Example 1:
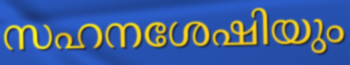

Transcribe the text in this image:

സഹനശേഷിയും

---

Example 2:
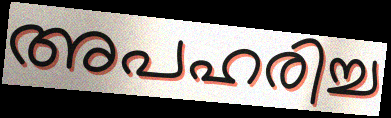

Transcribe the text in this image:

അപഹരിച്ച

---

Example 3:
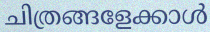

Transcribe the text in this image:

ചിത്രങ്ങളേക്കാൾ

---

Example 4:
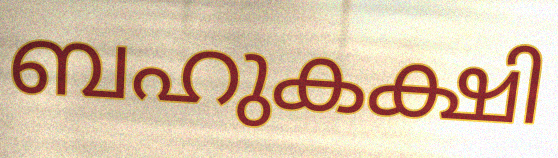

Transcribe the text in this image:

ബഹുകക്ഷി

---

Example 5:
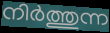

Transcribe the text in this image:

നിർത്തുന്ന